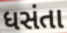
ધસંતા